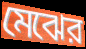
মেঝের